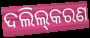
ଦଲିଲ୍‌କରଣ